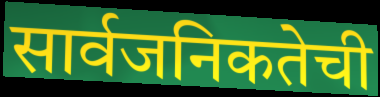
सार्वजनिकतेची